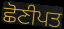
ਛੋਣੀਪਤ